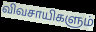
விவசாயிகளும்